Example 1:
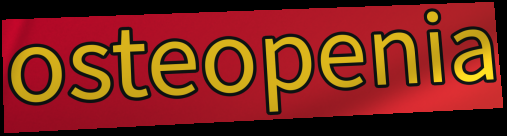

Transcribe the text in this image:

osteopenia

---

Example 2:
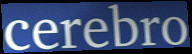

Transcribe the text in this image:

cerebro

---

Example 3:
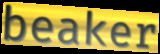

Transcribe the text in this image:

beaker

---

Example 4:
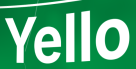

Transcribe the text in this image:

Yello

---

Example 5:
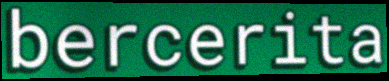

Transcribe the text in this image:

bercerita